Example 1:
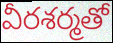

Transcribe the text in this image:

వీరశర్మతో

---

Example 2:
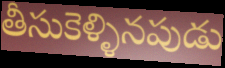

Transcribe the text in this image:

తీసుకెళ్ళినపుడు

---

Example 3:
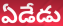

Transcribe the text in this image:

ఏడేడు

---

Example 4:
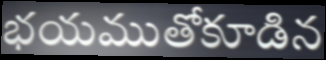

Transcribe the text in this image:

భయముతోకూడిన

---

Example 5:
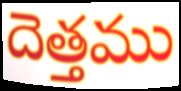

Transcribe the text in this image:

దెత్తము